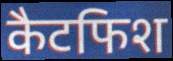
कैटफिश